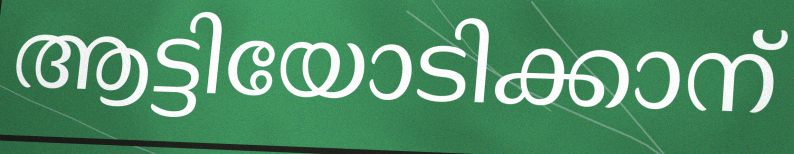
ആട്ടിയോടിക്കാന്